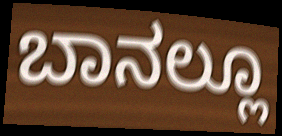
ಬಾನಲ್ಲೂ